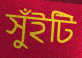
সুঁইটি